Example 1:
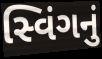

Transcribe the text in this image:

સ્વિંગનું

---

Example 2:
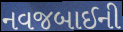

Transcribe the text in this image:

નવજબાઈની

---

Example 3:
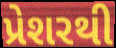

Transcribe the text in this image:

પ્રેશરથી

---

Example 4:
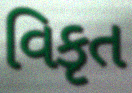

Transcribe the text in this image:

વિકૃત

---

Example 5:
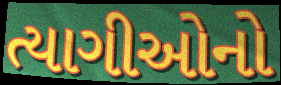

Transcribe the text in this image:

ત્યાગીઓનો